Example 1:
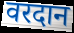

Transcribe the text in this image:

वरदान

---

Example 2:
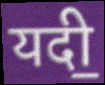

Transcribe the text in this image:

यदी॒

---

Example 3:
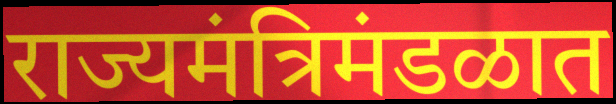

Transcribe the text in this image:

राज्यमंत्रिमंडळात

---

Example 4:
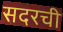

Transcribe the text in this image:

सदरची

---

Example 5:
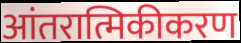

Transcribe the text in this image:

आंतरात्मिकीकरण